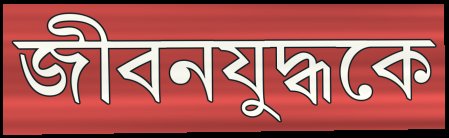
জীবনযুদ্ধকে